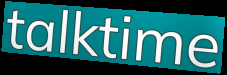
talktime